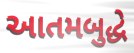
આતમબુદ્ધે